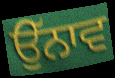
ਉੱਨਾਵ